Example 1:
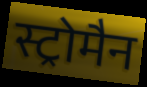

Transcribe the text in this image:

स्ट्रोमैन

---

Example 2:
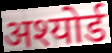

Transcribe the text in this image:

अश्योर्ड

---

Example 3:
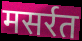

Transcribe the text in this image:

मसर्रत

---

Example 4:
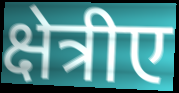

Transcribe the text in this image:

क्षेत्रीए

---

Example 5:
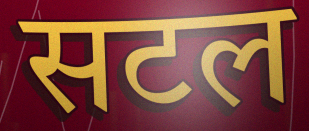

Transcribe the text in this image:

सटल